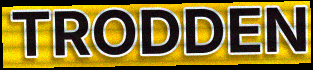
TRODDEN